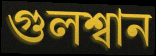
গুলশ্বান